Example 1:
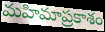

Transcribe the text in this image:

మహిమాప్రకాశం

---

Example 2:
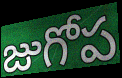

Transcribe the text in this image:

జుగోప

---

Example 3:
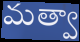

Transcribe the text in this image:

మత్వా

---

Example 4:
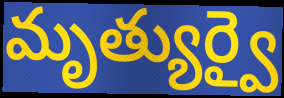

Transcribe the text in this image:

మృత్యుర్వై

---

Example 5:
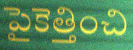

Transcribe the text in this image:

పైకెత్తించి